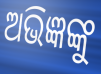
ଅଭିଜ୍ଞଙ୍କୁ